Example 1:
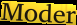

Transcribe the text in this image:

Moder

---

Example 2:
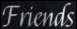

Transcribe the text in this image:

Friends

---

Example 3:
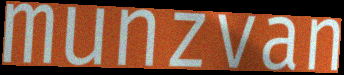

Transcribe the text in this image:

munzvan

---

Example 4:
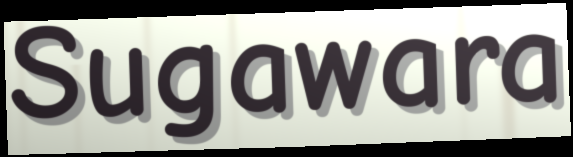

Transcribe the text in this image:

Sugawara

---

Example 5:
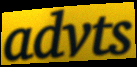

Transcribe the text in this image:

advts